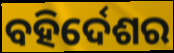
ବହିର୍ଦେଶର